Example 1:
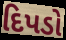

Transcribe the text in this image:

દિપડો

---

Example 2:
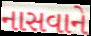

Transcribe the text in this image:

નાસવાને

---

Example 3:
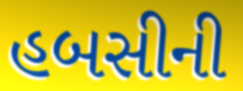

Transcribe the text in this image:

હબસીની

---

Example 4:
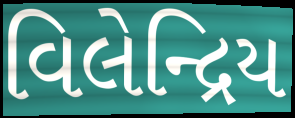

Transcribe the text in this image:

વિલેન્દ્રિય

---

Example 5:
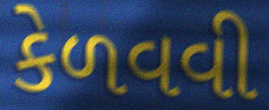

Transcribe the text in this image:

કેળવવી